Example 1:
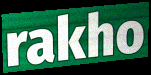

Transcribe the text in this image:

rakho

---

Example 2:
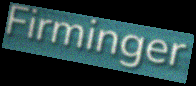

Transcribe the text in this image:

Firminger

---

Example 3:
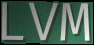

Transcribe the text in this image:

LVM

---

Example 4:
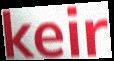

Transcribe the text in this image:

keir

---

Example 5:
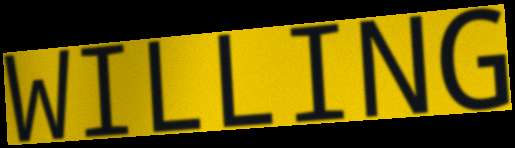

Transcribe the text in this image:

WILLING